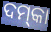
ଦମ୍‌କା